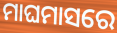
ମାଘମାସରେ